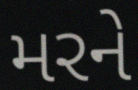
મરને